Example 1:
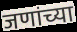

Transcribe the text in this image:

जणांच्या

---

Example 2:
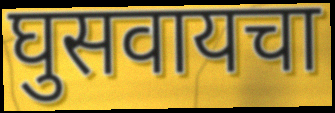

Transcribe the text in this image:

घुसवायचा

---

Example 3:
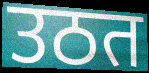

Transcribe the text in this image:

उठत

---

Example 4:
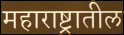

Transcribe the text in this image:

महाराष्ट्रातील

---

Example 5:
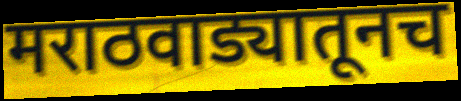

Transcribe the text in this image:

मराठवाड्यातूनच